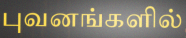
புவனங்களில்